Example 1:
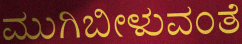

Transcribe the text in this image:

ಮುಗಿಬೀಳುವಂತೆ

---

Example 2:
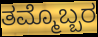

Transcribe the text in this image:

ತಮ್ಮೊಬ್ಬರ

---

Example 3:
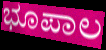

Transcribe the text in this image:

ಭೂಪಾಲ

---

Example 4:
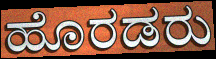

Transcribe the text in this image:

ಹೊರಡರು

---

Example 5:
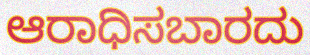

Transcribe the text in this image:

ಆರಾಧಿಸಬಾರದು